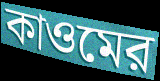
কাওমের